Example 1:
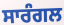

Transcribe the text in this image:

ਸਾਰੰਗਲ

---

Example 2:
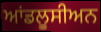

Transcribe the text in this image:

ਆਂਡਲੂਸੀਅਨ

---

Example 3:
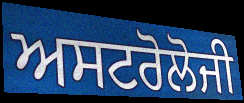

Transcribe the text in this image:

ਅਸਟਰੋਲੋਜੀ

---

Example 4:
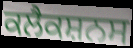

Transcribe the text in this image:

ਕਲੈਕਸ਼ਨਸ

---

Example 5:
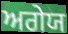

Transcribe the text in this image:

ਅਗੇਯ